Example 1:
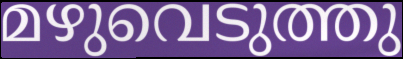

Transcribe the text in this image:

മഴുവെടുത്തു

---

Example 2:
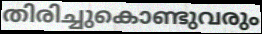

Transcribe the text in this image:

തിരിച്ചുകൊണ്ടുവരും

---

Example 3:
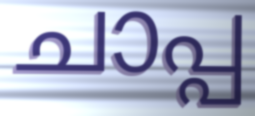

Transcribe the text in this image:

ചാപ്പ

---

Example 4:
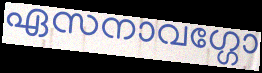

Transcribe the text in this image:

ഏസനാവഗ്ഗോ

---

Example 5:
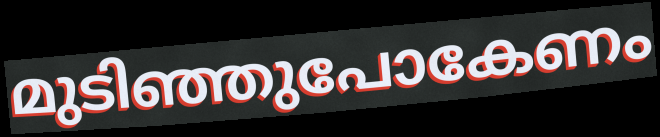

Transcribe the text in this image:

മുടിഞ്ഞുപോകേണം